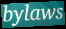
bylaws